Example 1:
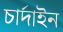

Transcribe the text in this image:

চাৰ্দাইন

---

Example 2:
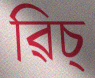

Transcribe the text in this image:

ৱিচ্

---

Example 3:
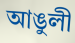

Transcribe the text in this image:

আঙুলী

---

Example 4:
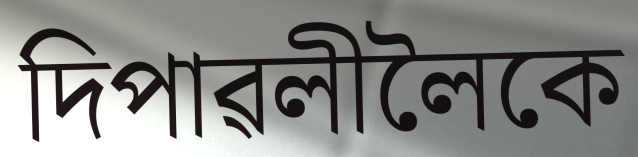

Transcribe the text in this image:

দিপাৱলীলৈকে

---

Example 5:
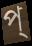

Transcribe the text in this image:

প্